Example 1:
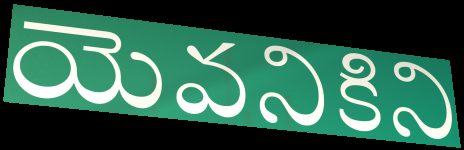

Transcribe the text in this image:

యెవనికిని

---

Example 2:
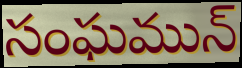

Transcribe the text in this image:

సంఘమున్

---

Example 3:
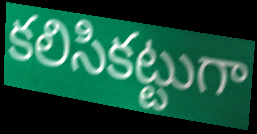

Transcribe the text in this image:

కలిసికట్టుగా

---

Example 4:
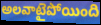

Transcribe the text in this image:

అలవాటైపోయింది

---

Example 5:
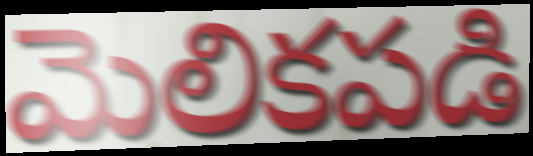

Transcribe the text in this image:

మెలికపడి